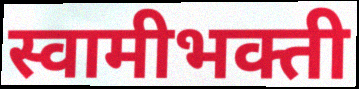
स्वामीभक्ती